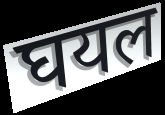
घयल